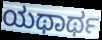
ಯಥಾರ್ಥ